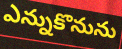
ఎన్నుకొనును